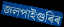
জলপাইগুৰিৰ